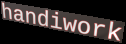
handiwork